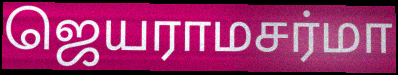
ஜெயராமசர்மா